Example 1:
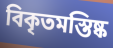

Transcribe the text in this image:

বিকৃতমস্তিষ্ক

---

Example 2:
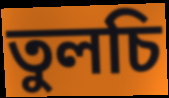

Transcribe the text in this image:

তুলচি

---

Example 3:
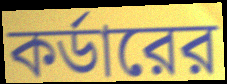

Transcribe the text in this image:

কর্ডারের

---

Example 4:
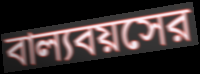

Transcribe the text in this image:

বাল্যবয়সের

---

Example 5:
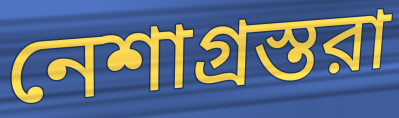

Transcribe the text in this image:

নেশাগ্রস্তরা